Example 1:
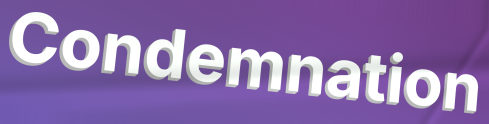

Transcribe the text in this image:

Condemnation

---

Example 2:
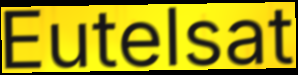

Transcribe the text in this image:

Eutelsat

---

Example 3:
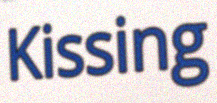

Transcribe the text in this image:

Kissing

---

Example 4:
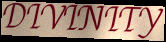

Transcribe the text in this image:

DIVINITY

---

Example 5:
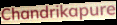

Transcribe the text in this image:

Chandrikapure